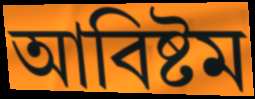
আবিষ্টম